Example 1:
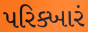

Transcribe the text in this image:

પરિક્ખારં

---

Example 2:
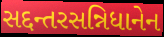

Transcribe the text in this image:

સદ્દન્તરસન્નિધાનેન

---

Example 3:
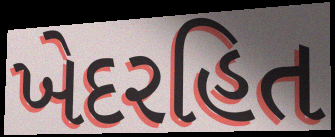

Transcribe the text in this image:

ખેદરહિત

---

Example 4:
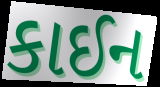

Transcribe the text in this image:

કાઈન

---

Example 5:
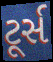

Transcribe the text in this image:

ટૂર્સ